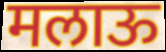
मलाऊ